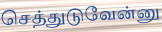
செத்துடுவேன்னு